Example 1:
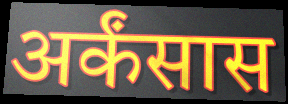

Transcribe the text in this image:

अर्कंसास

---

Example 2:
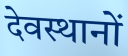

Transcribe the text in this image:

देवस्थानों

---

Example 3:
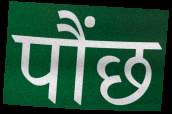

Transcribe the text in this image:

पौंछ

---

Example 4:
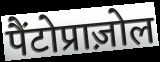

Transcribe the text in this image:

पैंटोप्राज़ोल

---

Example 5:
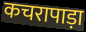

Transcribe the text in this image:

कचरापाड़ा